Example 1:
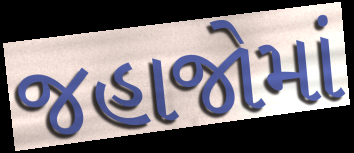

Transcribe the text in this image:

જહાજોમાં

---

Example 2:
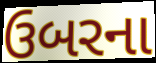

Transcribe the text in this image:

ઉબરના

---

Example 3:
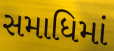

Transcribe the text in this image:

સમાધિમાં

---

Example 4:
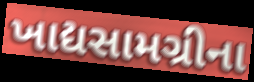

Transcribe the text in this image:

ખાદ્યસામગ્રીના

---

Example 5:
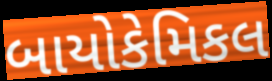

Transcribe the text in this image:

બાયોકેમિકલ